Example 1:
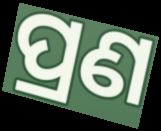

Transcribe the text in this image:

ପ୍ରଣ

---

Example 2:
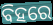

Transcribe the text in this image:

ବିହରେ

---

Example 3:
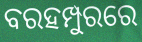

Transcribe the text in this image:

ବରହମ୍ପୁରରେ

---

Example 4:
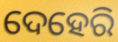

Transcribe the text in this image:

ଦେହେରି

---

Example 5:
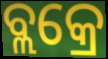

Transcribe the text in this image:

ବ୍ଲକ୍ରେ